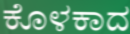
ಕೊಳಕಾದ